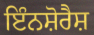
ਇੰਨਸ਼ੋਰੈਸ਼